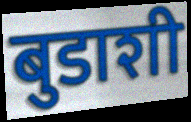
बुडाशी